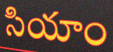
సియాం